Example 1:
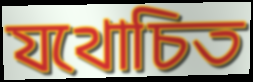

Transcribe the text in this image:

যথোচিত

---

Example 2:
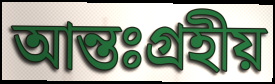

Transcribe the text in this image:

আন্তঃগ্রহীয়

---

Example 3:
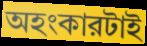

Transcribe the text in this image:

অহংকারটাই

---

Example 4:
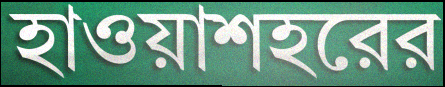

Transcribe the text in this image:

হাওয়াশহরের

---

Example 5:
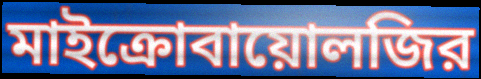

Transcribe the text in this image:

মাইক্রোবায়োলজির